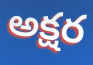
అక్షర